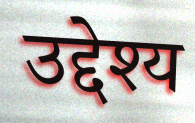
उद्देश्‍य